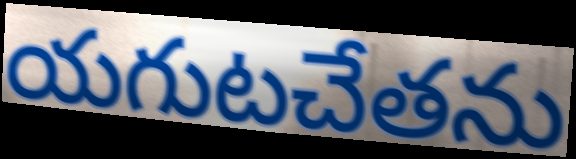
యగుటచేతను